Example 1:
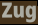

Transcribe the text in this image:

Zug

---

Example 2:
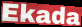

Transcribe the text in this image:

Ekada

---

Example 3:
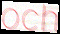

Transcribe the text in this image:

och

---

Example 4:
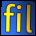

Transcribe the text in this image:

fil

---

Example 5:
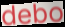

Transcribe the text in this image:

debo